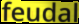
feudal